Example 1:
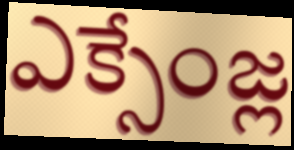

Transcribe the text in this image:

ఎక్సేంజ్ల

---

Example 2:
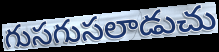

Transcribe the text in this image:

గుసగుసలాడుచు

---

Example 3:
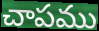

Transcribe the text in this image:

చాపము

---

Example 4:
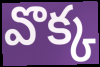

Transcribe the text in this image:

వొక్క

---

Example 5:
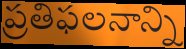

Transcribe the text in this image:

ప్రతిఫలనాన్ని